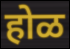
होळ